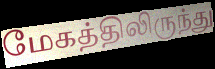
மேகத்திலிருந்து